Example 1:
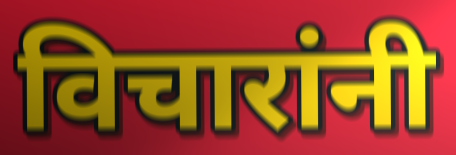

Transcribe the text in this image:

विचारांनी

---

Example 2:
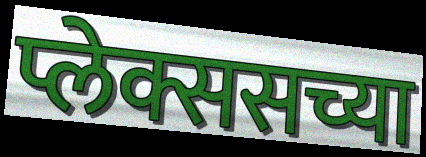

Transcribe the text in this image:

प्लेक्ससच्या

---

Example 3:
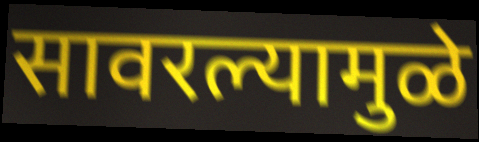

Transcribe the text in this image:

सावरल्यामुळे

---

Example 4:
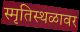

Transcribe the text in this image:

स्मृतिस्थळावर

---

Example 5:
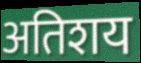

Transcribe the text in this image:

अतिशय